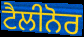
ਟੈਲੀਨੋਰ